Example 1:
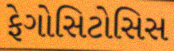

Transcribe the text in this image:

ફેગોસિટોસિસ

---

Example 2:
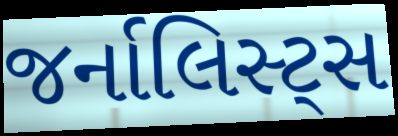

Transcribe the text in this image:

જર્નાલિસ્ટ્સ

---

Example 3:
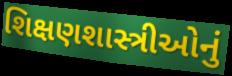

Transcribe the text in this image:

શિક્ષણશાસ્ત્રીઓનું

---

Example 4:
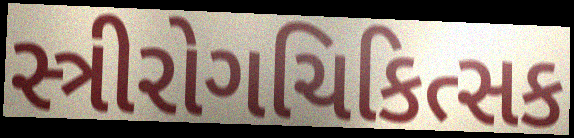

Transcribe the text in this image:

સ્ત્રીરોગચિકિત્સક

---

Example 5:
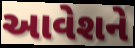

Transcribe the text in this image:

આવેશને